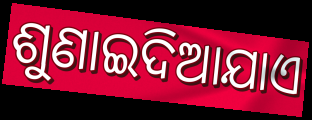
ଶୁଣାଇଦିଆଯାଏ